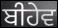
ਬੀਹੇਵ